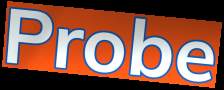
Probe